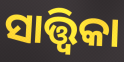
ସାତ୍ତ୍ୱିକା